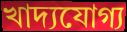
খাদ্যযোগ্য